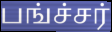
பங்ச்சர்